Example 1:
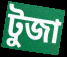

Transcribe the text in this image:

টুজা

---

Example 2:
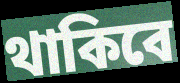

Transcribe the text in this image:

থাকিবে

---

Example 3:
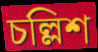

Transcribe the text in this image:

চল্লিশ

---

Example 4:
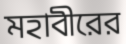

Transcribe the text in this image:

মহাবীরের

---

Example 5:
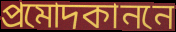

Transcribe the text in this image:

প্রমোদকাননে